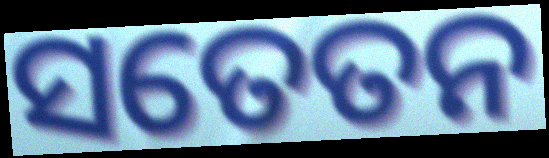
ସତେତନ